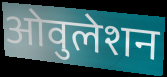
ओवुलेशन